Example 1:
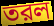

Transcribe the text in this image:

তরল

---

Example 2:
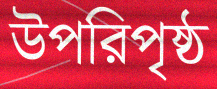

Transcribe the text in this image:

উপরিপৃষ্ঠ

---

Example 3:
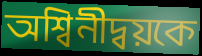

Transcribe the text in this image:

অশ্বিনীদ্বয়কে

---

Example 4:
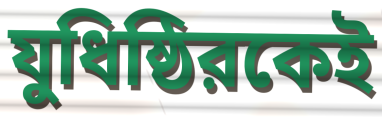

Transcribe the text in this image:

যুধিষ্ঠিরকেই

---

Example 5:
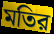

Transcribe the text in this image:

মতির